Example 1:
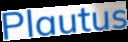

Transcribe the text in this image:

Plautus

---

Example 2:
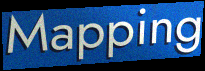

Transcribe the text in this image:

Mapping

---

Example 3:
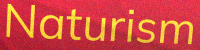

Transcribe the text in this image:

Naturism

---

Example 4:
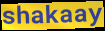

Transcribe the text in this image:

shakaay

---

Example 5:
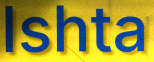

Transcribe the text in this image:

Ishta